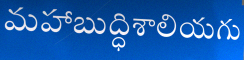
మహాబుద్ధిశాలియగు